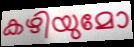
കഴിയുമോ